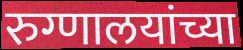
रुग्णालयांच्या